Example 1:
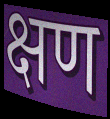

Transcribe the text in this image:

क्षण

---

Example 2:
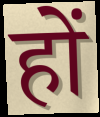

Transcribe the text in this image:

हों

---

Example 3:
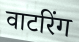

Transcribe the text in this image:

वाटरिंग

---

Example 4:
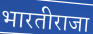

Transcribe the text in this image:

भारतीराजा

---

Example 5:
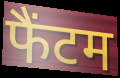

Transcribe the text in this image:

फैंटम